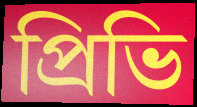
প্রিভি